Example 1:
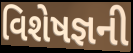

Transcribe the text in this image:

વિશેષજ્ઞની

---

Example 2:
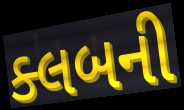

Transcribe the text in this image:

ક્લબની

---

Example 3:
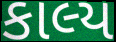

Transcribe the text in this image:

કાલ્ય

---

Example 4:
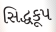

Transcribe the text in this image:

સિદ્ધકૂપ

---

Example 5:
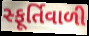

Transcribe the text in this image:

સ્ફૂર્તિવાળી